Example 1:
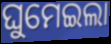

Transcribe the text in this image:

ଘୁମେଇଲା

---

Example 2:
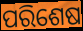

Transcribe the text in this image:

ପରିଶେଷ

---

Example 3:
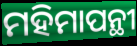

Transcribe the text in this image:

ମହିମାପନ୍ଥୀ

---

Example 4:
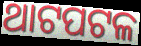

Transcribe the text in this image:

ଥାଟପଟଳ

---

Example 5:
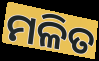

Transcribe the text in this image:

ମଳିତ